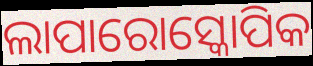
ଲାପାରୋସ୍କୋପିକ